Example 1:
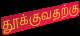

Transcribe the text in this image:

தூக்குவதற்கு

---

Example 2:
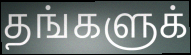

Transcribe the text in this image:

தங்களுக்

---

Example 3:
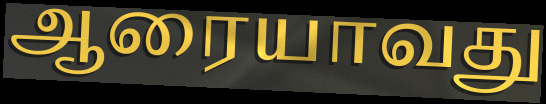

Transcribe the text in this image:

ஆரையாவது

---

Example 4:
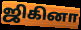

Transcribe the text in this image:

ஜிகினா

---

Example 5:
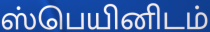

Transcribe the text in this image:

ஸ்பெயினிடம்